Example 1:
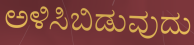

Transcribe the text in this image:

ಅಳಿಸಿಬಿಡುವುದು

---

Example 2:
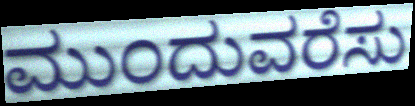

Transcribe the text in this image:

ಮುಂದುವರೆಸು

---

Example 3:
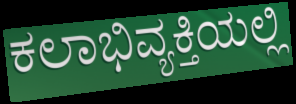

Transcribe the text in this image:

ಕಲಾಭಿವ್ಯಕ್ತಿಯಲ್ಲಿ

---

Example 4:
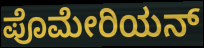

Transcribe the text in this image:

ಪೊಮೇರಿಯನ್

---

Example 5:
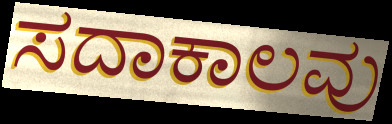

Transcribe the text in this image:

ಸದಾಕಾಲವು